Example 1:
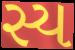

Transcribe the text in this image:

સ્ય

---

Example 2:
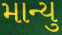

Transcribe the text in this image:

માન્યુ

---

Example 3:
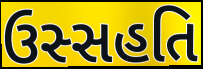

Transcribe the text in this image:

ઉસ્સહતિ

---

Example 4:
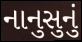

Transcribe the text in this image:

નાનુસુનું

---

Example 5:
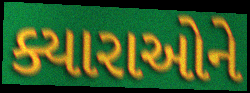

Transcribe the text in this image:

ક્યારાઓને